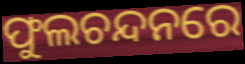
ଫୁଲଚନ୍ଦନରେ